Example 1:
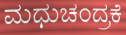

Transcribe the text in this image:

ಮಧುಚಂದ್ರಕೆ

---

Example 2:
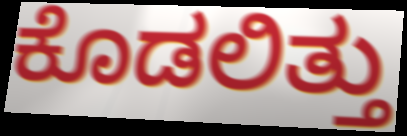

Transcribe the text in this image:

ಕೊಡಲಿತ್ತು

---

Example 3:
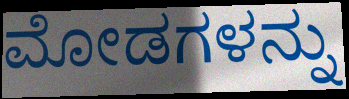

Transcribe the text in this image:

ಮೋಡಗಳನ್ನು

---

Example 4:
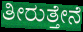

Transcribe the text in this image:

ತೀರುತ್ತೇನೆ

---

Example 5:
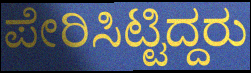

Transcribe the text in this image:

ಪೇರಿಸಿಟ್ಟಿದ್ದರು